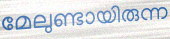
മേലുണ്ടായിരുന്ന